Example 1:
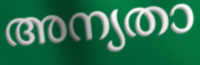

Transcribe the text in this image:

അന്യതാ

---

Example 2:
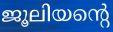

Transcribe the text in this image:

ജൂലിയന്റെ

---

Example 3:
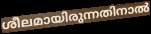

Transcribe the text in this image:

ശീലമായിരുന്നതിനാൽ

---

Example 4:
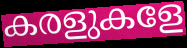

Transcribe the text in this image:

കരളുകളേ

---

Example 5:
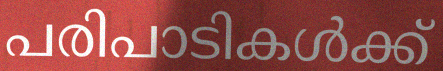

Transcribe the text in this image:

പരിപാടികൾക്ക്